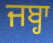
ਜਬ੍ਹਾ